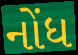
નોંધ